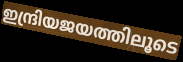
ഇന്ദ്രിയജയത്തിലൂടെ